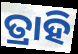
ତ୍ରାହି